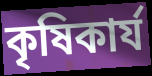
কৃষিকাৰ্য